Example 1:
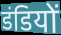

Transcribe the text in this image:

डंडियों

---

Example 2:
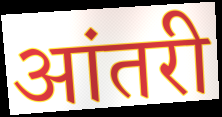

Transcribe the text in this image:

आंतरी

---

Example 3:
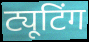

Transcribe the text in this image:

ट्यूटिंग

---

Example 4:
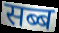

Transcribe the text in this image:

सब्ब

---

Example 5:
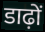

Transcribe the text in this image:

डाढ़ों